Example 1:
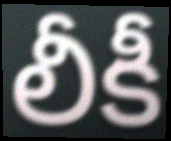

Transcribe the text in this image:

లీకీ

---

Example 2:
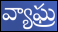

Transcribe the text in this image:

వ్యాఘ్ర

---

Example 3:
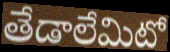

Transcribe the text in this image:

తేడాలేమిటో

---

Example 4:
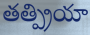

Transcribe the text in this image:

తత్ప్రియా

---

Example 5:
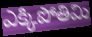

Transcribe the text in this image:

ఎక్కిపోతిమి